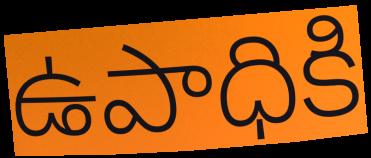
ఉపాధికి